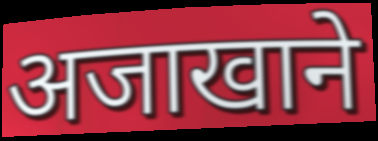
अजाखाने